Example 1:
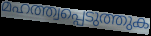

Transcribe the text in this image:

മഹത്ത്വപ്പെടുത്തുക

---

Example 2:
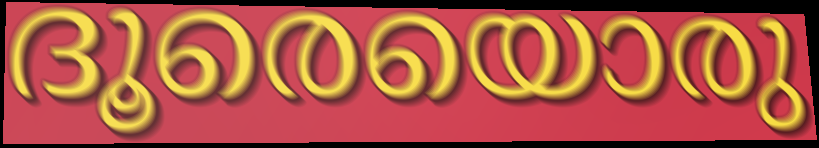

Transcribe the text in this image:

ദൂരെയൊരു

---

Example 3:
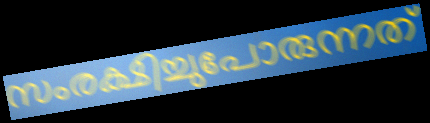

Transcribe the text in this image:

സംരക്ഷിച്ചുപോരുന്നത്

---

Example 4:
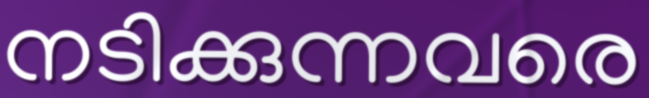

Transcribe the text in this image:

നടിക്കുന്നവരെ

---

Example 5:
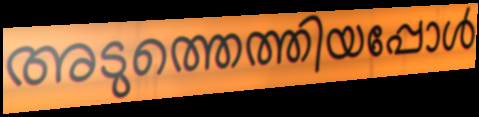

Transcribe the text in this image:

അടുത്തെത്തിയപ്പോൾ